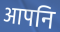
आपनि